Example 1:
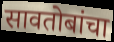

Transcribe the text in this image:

सावतोबांचा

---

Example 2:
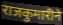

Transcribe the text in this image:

राजकुमारीने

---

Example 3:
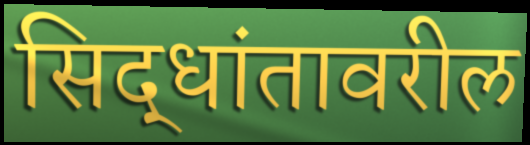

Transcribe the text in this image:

सिद्धांतावरील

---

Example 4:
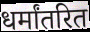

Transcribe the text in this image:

धर्मांतरित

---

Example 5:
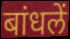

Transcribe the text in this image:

बांधलें